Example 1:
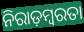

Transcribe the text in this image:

ନିରାଡ଼ମ୍ବରତା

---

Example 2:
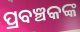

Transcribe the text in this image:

ପ୍ରବଞ୍ଚକଙ୍କ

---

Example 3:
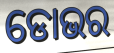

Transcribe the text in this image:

ଡୋଭର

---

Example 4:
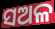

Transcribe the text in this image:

ସଅଳ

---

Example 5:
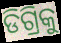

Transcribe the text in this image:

ଡିଗ୍ରିକୁ